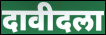
दावीदला